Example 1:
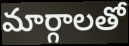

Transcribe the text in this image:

మార్గాలతో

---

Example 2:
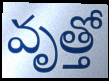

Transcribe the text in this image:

వృత్తో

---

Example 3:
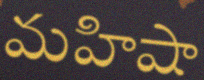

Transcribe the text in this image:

మహిషా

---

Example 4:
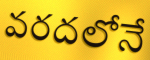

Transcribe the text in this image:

వరదలోనే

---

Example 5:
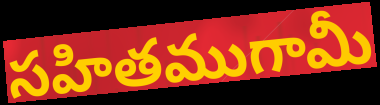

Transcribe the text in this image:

సహితముగామీ